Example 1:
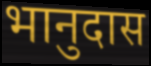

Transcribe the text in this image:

भानुदास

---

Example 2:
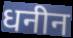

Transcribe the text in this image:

धनीन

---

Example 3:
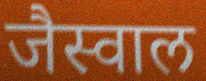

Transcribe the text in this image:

जैस्वाल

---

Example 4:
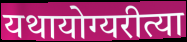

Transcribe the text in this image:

यथायोग्यरीत्या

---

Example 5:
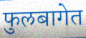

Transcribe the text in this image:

फुलबागेत